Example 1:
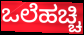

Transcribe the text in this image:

ಒಲೆಹಚ್ಚಿ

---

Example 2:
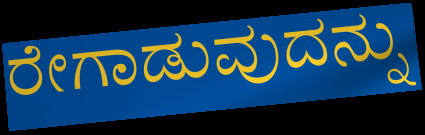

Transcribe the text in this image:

ರೇಗಾಡುವುದನ್ನು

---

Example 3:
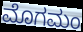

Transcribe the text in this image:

ಮೊಗಮಂ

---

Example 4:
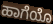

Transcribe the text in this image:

ಹಾಗೆಯೊ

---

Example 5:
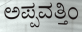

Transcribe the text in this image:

ಅಪ್ಪವತ್ತಿಂ